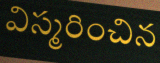
విస్మరించిన